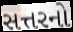
સત્તરનો